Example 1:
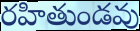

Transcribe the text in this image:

రహితుండవు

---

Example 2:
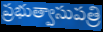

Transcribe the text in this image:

ప్రభుత్వాసుపత్రి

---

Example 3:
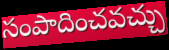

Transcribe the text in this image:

సంపాదించవచ్చు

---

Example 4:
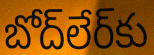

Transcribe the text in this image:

బోద్‌లేర్‌కు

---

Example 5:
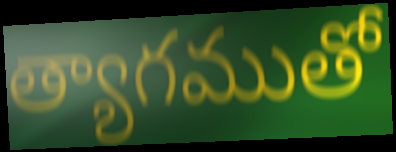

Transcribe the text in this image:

త్యాగముతో